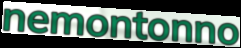
nemontonno